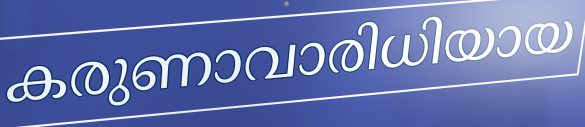
കരുണാവാരിധിയായ